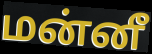
மன்னீ